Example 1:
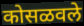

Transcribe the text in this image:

कोसळवले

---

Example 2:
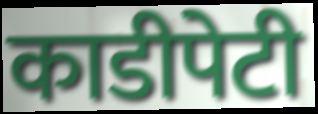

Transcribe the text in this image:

काडीपेटी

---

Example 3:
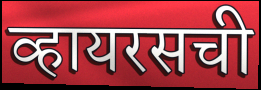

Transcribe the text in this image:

व्हायरसची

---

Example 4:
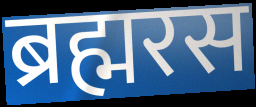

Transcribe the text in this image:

ब्रह्मरस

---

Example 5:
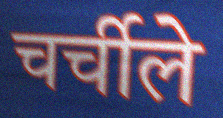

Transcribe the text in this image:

चर्चीले